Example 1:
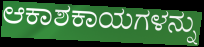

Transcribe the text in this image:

ಆಕಾಶಕಾಯಗಳನ್ನು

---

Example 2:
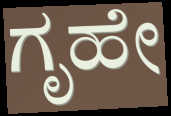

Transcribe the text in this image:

ಗೃಹೇ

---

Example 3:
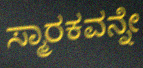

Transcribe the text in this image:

ಸ್ಮಾರಕವನ್ನೇ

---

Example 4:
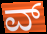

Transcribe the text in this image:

ವ್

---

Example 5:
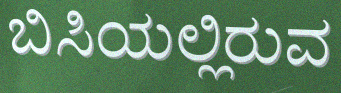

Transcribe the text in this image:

ಬಿಸಿಯಲ್ಲಿರುವ